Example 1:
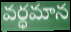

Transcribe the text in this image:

వర్ధమాన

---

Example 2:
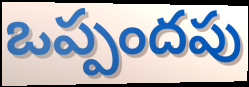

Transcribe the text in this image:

ఒప్పందపు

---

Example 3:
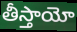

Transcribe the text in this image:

తీస్తాయో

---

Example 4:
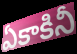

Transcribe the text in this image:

ఏకాకినీ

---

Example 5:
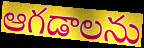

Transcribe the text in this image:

ఆగడాలను